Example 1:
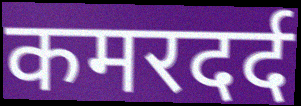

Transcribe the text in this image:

कमरदर्द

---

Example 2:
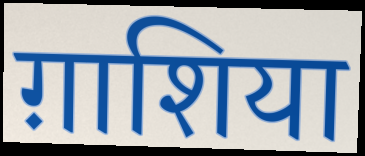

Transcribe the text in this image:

ग़ाशिया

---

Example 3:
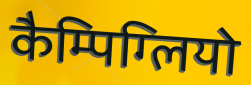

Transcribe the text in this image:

कैम्पिग्लियो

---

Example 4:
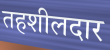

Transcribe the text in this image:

तहशीलदार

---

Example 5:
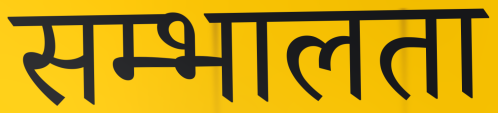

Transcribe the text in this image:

सम्भालता